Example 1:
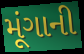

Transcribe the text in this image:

મૂંગાની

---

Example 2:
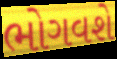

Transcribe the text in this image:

ભોગવશે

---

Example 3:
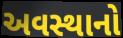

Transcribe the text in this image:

અવસ્થાનો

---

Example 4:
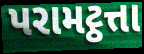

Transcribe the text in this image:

પરામટ્ઠત્તા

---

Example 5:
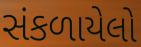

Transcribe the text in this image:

સંકળાયેલો